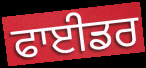
ਫਾਈਡਰ